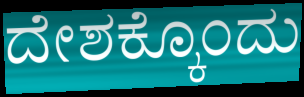
ದೇಶಕ್ಕೊಂದು